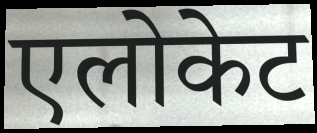
एलोकेट